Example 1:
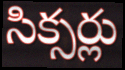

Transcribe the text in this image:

సిక్సర్లు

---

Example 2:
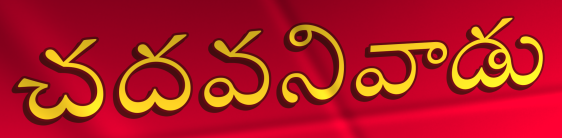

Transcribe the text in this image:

చదవనివాడు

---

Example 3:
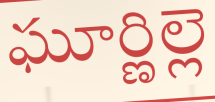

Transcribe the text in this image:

ఘూర్ణిల్లె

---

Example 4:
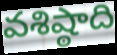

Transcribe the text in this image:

వశిష్ఠాది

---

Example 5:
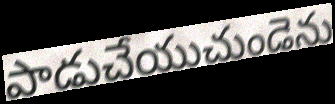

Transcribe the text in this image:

పాడుచేయుచుండెను